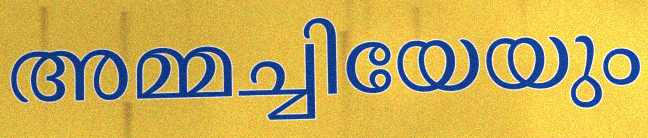
അമ്മച്ചിയേയും